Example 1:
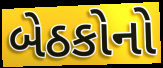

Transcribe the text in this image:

બેઠકોનો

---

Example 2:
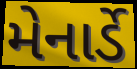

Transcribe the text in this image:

મેનાર્ડે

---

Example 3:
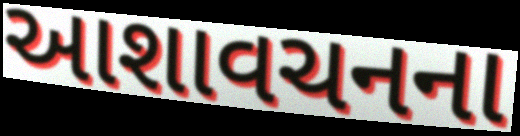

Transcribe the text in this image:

આશાવચનના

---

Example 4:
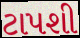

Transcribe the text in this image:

ટાપશી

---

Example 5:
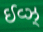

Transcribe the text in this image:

ઈવ્ઝ્